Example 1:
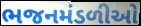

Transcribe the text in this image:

ભજનમંડળીઓ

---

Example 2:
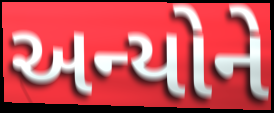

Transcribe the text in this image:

અન્યોને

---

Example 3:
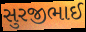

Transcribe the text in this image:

સુરજીભાઈ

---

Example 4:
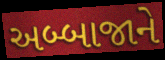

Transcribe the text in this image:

અબ્બાજાને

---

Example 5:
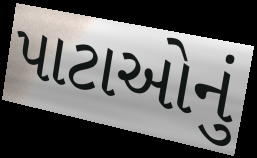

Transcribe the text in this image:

પાટાઓનું